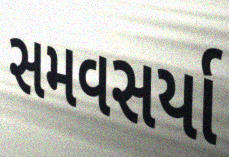
સમવસર્યા